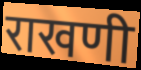
राखणी